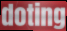
doting